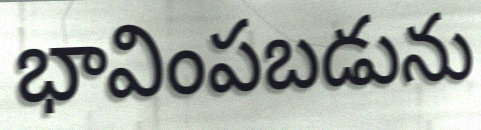
భావింపబడును